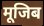
मूजिब